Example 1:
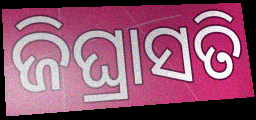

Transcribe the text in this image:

ଜିଘ୍ରାସତି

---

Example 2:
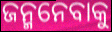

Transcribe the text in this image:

ଜନ୍ମନେବାକୁ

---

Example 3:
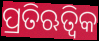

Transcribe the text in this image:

ପ୍ରତିଋତ୍ୱିକ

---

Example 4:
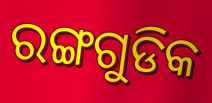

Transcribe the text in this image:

ରଙ୍ଗଗୁଡିକ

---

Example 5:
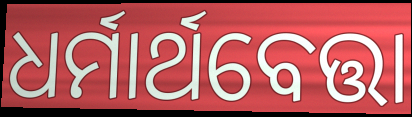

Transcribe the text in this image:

ଧର୍ମାର୍ଥବେତ୍ତା